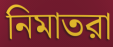
নিমাতরা